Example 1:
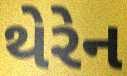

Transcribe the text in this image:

થેરેન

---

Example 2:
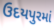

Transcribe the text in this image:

ઉદયપુરમાં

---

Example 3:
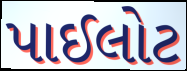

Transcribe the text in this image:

પાઈલોટ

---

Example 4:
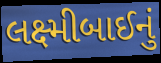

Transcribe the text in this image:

લક્ષ્મીબાઈનું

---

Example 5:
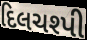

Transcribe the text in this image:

દિલચશ્પી